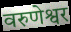
वरुणेश्वर